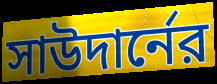
সাউদার্নের